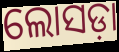
ଲୋସଡ଼ା